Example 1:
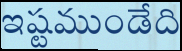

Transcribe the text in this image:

ఇష్టముండేది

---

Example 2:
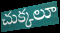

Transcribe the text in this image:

చుక్కలూ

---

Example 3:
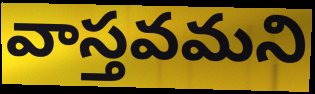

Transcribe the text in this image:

వాస్తవమని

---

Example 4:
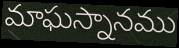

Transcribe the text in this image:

మాఘస్నానము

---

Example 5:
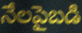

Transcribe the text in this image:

నేలపైబడి